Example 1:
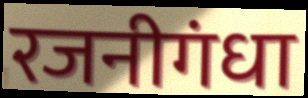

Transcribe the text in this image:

रजनीगंधा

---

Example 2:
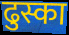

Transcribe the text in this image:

ढुस्का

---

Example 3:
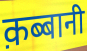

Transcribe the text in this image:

क़ब्बानी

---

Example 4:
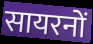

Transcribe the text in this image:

सायरनों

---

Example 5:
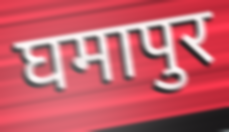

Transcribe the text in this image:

घमापुर